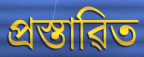
প্ৰস্তাৱিত